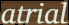
atrial